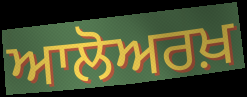
ਆਲੋਅਰਖ਼